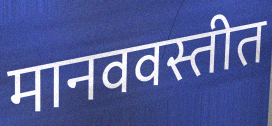
मानववस्तीत